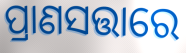
ପ୍ରାଣସତ୍ତାରେ